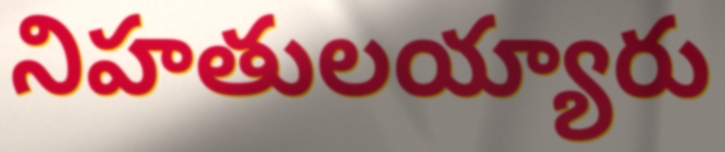
నిహతులయ్యారు